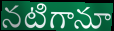
నటిగానూ